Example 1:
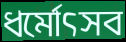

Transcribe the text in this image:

ধর্মোৎসব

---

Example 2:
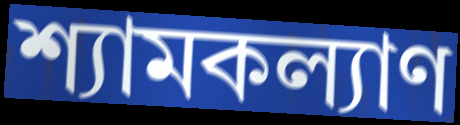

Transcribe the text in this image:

শ্যামকল্যাণ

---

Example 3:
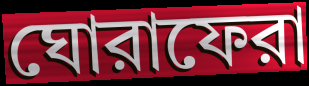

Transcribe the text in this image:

ঘোরাফেরা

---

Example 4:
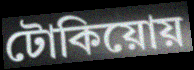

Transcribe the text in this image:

টোকিয়োয়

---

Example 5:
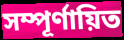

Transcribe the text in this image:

সম্পূর্ণায়িত